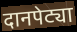
दानपेट्या